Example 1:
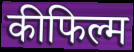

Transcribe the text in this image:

कीफिल्म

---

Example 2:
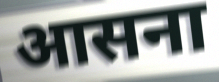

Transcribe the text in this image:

आसना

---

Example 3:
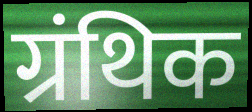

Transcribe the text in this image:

ग्रंथिक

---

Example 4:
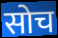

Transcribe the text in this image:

सोच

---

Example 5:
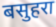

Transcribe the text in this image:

बसुहरा